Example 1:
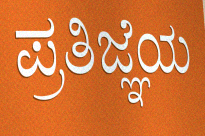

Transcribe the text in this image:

ಪ್ರತಿಜ್ಞೆಯ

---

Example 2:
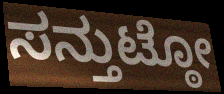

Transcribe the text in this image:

ಸನ್ತುಟ್ಠೋ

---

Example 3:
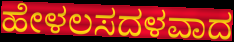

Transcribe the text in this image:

ಹೇಳಲಸದಳವಾದ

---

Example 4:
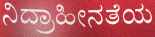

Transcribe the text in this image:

ನಿದ್ರಾಹೀನತೆಯ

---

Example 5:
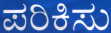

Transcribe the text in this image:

ಪರಿಕಿಸು